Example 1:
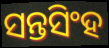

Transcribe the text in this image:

ସନ୍ତସିଂହ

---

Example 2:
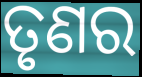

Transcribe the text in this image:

ତୃଣର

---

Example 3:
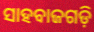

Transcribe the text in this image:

ସାହବାଜଗଡ଼ି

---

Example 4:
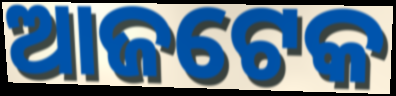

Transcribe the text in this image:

ଆଜଟେକ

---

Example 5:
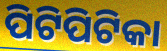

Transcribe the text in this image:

ପିଟିପିଟିକା